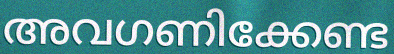
അവഗണിക്കേണ്ട